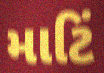
માટિં